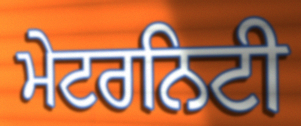
ਮੇਟਰਨਿਟੀ